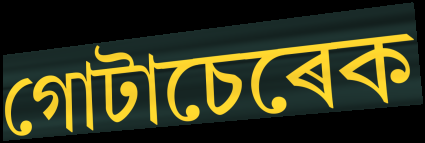
গোটাচেৰেক